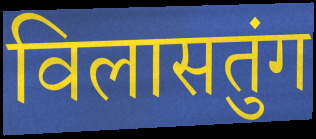
विलासतुंग